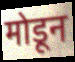
मोडून